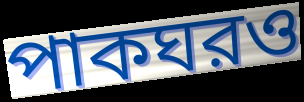
পাকঘরও